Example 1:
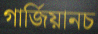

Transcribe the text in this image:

গাৰ্জিয়ানচ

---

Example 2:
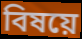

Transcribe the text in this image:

বিষয়ে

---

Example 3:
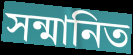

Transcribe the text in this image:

সন্মানিত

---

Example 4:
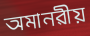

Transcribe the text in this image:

অমানৱীয়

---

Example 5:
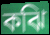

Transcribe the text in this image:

কঝি